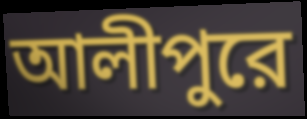
আলীপুরে